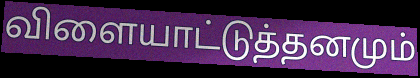
விளையாட்டுத்தனமும்